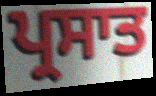
ਪ੍ਰਸਾਤ